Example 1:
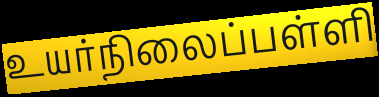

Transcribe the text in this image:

உயர்நிலைப்பள்ளி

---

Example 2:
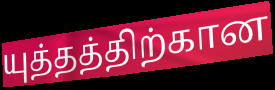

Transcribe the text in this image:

யுத்தத்திற்கான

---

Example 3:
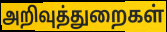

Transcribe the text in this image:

அறிவுத்துறைகள்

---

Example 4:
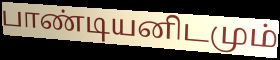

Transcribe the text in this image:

பாண்டியனிடமும்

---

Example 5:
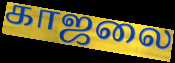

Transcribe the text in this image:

காஜலை